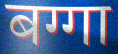
बग्गा